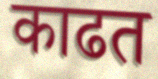
काढत